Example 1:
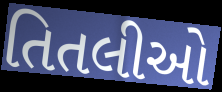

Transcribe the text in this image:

તિતલીઓ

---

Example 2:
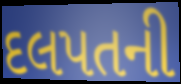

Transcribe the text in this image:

દલપતની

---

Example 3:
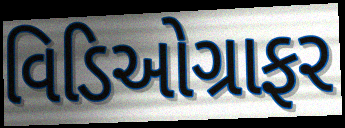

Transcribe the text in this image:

વિડિઓગ્રાફર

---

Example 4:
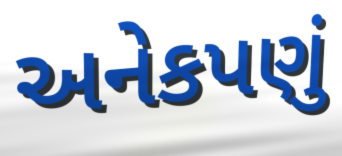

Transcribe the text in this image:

અનેકપણું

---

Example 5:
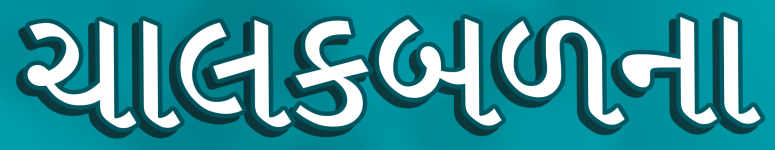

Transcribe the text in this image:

ચાલકબળના